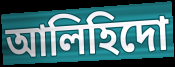
আলিহিদো